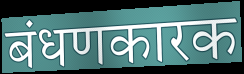
बंधणकारक